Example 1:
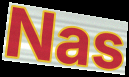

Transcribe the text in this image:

Nas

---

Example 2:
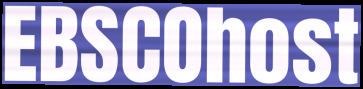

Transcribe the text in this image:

EBSCOhost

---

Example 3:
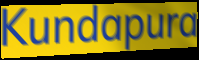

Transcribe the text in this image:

Kundapura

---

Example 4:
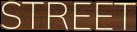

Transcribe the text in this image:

STREET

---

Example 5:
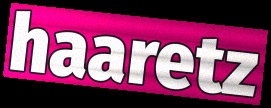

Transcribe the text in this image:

haaretz